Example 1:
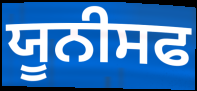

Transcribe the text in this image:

ਯੂਨੀਸਫ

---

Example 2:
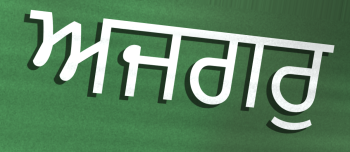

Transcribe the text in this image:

ਅਜਗਰੁ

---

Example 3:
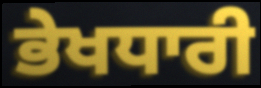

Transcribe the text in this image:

ਭੇਖਧਾਰੀ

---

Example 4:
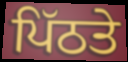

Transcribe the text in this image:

ਪਿੱਠਤੇ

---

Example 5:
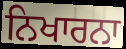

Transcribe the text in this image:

ਨਿਖਾਰਨਾ